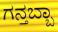
ಗನ್ತಬ್ಬಾ